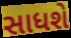
સાધશે